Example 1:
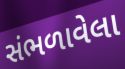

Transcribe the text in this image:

સંભળાવેલા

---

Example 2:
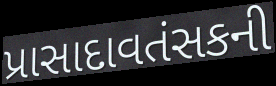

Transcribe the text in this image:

પ્રાસાદાવતંસકની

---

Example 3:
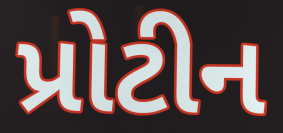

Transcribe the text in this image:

પ્રોટીન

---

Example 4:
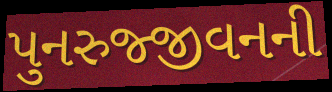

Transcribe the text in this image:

પુનરુજ્જીવનની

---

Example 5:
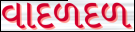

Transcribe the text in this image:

વાદળદળ